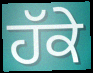
ਹੱਕੇ